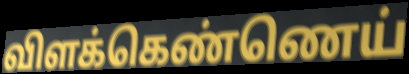
விளக்கெண்ணெய்